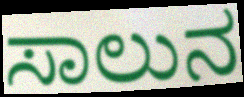
ಸಾಲುನ